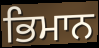
ਭਿਮਾਨ